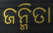
ଜନ୍ମିତା